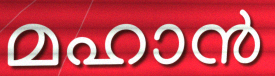
മഹാൻ